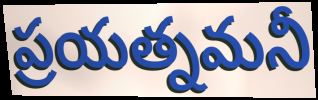
ప్రయత్నమనీ